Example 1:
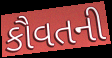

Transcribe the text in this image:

કૌવતની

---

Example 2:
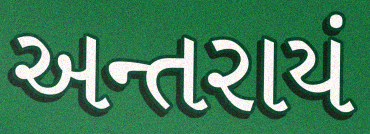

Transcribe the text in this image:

અન્તરાયં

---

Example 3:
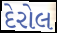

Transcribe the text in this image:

દેરોલ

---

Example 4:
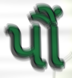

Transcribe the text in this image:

પૌં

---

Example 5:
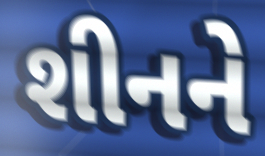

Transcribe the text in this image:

શીનને